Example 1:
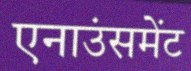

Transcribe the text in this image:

एनाउंसमेंट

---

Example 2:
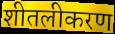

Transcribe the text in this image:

शीतलीकरण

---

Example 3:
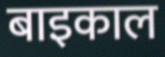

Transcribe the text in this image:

बाइकाल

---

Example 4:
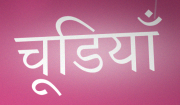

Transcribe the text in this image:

चूडियाँ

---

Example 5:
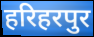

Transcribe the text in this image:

हरिहरपुर